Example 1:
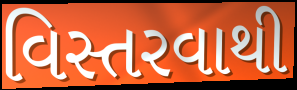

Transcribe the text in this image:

વિસ્તરવાથી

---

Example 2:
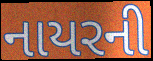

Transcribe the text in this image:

નાયરની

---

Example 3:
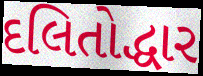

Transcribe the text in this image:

દલિતોદ્ધાર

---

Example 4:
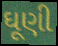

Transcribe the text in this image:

ઘૂણી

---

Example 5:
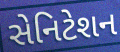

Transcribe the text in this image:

સેનિટેશન